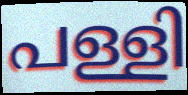
പള്ളി